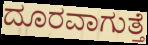
ದೂರವಾಗುತ್ತೆ